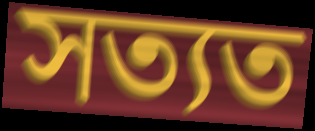
সত্যত